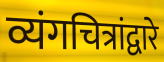
व्यंगचित्रांद्वारे